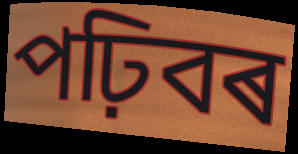
পঢ়িবৰ